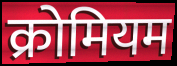
क्रोमियम